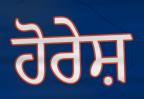
ਹੋਰੇਸ਼